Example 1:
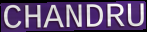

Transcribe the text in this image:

CHANDRU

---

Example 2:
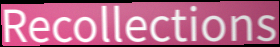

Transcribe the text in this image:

Recollections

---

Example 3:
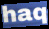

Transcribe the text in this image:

haq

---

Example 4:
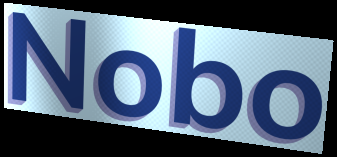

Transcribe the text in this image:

Nobo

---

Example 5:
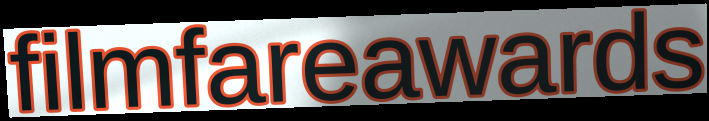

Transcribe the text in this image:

filmfareawards